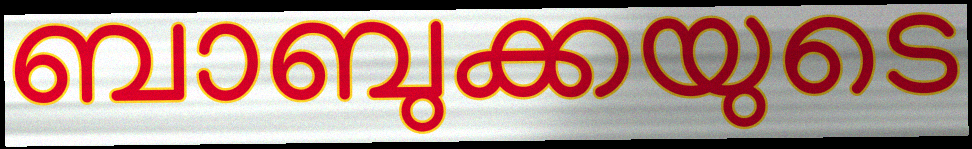
ബാബുക്കയുടെ